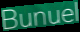
Bunuel